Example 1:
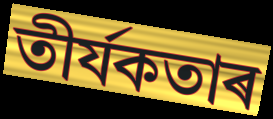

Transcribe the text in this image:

তীৰ্যকতাৰ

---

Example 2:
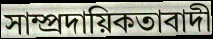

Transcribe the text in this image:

সাম্প্ৰদায়িকতাবাদী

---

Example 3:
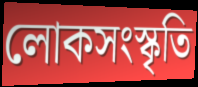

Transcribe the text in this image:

লোকসংস্কৃতি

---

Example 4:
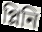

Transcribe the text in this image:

প্লিনি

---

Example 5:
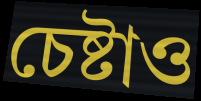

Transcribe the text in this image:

চেষ্টাও